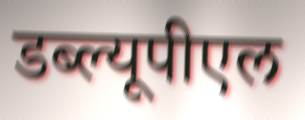
डब्ल्यूपीएल